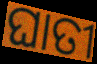
ଘାତୀ